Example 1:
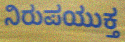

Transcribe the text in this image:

ನಿರುಪಯುಕ್ತ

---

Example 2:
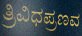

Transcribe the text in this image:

ತ್ರಿವಿಧಪ್ರಣವ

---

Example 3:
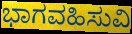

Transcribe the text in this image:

ಭಾಗವಹಿಸುವಿ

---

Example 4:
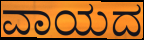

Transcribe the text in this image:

ವಾಯದ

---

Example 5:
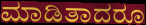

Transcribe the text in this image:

ಮಾಡಿತಾದರೂ